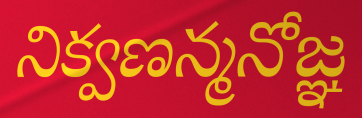
నిక్వణన్మనోజ్ఞ